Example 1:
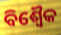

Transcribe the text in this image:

ବିଶ୍ୱୈକ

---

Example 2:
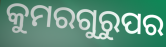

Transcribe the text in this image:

କୁମରଗୁରୁପର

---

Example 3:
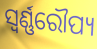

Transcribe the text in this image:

ସ୍ୱର୍ଣ୍ଣରୌପ୍ୟ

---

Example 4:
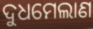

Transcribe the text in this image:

ଦୁଧମେଲାଣ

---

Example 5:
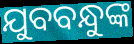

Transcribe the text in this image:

ଯୁବବନ୍ଧୁଙ୍କ